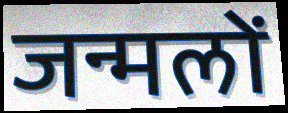
जन्मलों